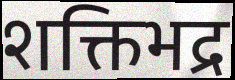
शक्तिभद्र